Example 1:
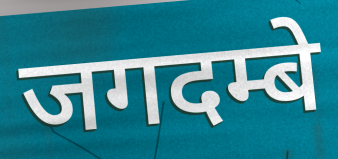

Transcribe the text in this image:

जगदम्बे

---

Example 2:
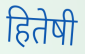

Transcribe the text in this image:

हितेषी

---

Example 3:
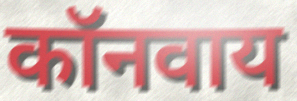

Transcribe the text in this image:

कॉनवाय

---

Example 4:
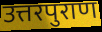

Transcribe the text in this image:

उत्तरपुराण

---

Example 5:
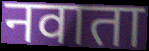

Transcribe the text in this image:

नवाता